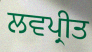
ਲਵਪ੍ਰੀਤ